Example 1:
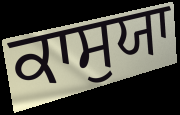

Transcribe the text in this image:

ਕਾਸੁਯਾ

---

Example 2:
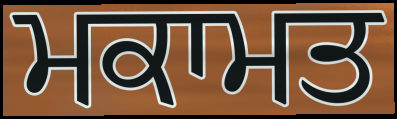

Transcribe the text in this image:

ਮਕਾਮਤ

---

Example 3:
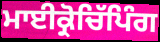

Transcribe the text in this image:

ਮਾਈਕ੍ਰੋਚਿੱਪਿੰਗ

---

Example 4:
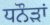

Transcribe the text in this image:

ਧਨੌੜਾਂ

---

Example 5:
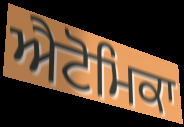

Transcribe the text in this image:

ਐਟੋਮਿਕਾ